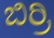
ಬಿರ್ರಿ